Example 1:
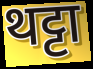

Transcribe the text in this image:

थट्टा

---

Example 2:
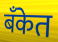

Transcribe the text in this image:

बॅंकेत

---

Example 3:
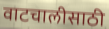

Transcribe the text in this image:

वाटचालीसाठी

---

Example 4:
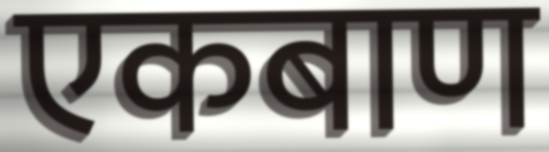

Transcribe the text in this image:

एकबाण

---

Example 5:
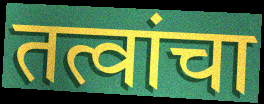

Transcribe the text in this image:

तत्वांचा